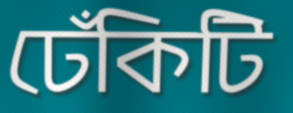
ঢেঁকিটি